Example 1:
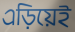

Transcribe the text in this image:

এড়িয়েই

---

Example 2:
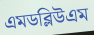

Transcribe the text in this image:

এমডব্লিউএম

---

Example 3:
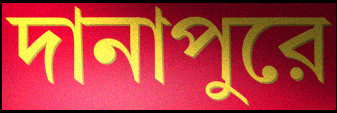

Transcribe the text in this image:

দানাপুরে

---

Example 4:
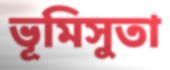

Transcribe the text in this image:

ভূমিসুতা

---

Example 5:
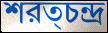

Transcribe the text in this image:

শরত্চন্দ্র